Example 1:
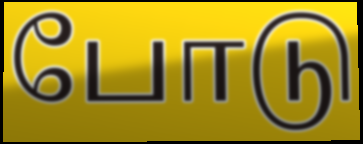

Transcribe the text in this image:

போடு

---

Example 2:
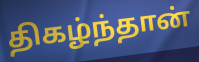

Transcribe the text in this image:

திகழ்ந்தான்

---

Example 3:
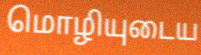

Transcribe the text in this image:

மொழியுடைய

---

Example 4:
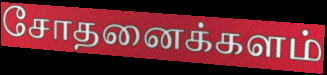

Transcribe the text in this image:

சோதனைக்களம்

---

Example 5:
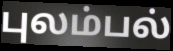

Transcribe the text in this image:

புலம்பல்